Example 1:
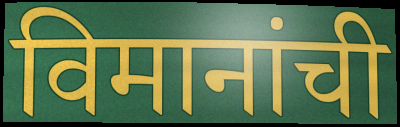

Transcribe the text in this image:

विमानांची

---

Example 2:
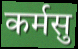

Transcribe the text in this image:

कर्मसु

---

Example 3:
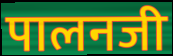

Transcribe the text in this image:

पालनजी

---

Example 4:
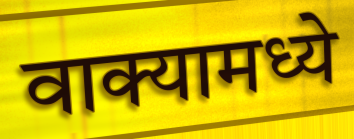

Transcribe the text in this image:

वाक्यामध्ये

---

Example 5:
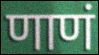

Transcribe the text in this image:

णाणं